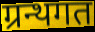
ग्रन्थगत